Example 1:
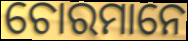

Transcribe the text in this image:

ଚୋରମାନେ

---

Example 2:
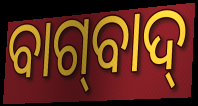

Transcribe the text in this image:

ବାଗ୍‌ବାଦ୍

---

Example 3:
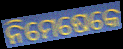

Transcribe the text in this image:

ନିମେଷେକେ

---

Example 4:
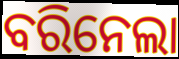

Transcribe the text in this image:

ବରିନେଲା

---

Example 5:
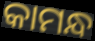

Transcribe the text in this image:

କାମନ୍ଧ